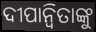
ଦୀପାନ୍ୱିତାଙ୍କୁ